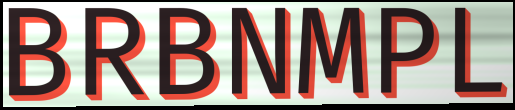
BRBNMPL